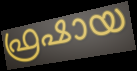
ഫ്രഷായ